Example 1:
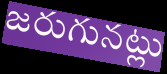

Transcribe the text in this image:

జరుగునట్లు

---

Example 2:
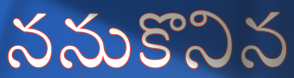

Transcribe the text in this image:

ననుకొనిన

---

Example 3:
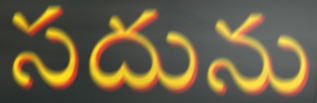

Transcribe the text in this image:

సదును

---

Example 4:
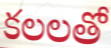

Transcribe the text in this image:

కలలతో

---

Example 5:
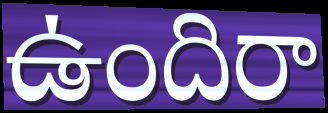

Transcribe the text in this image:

ఉందిరా